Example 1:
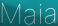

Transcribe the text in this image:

Maia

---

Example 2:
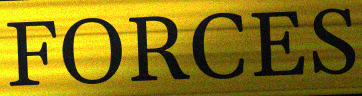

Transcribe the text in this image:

FORCES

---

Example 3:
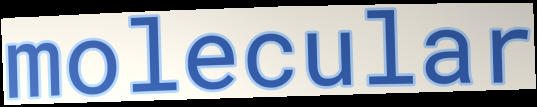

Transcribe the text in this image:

molecular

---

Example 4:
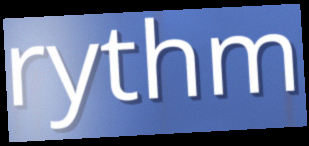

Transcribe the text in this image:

rythm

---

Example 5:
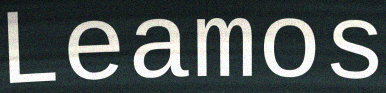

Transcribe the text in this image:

Leamos